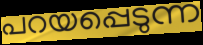
പറയപ്പെടുന്ന